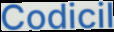
Codicil